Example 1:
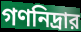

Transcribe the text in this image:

গণনিদ্রার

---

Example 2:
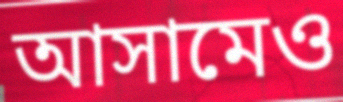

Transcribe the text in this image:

আসামেও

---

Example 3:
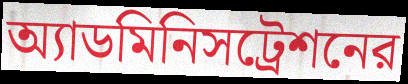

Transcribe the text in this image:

অ্যাডমিনিসট্রেশনের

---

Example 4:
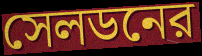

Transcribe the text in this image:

সেলডনের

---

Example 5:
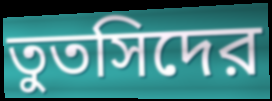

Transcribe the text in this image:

তুতসিদের